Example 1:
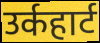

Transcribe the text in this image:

उर्कहार्ट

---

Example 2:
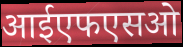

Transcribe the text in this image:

आईएफएसओ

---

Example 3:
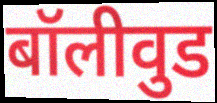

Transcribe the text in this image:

बॉलीवुड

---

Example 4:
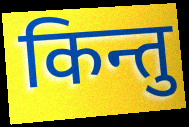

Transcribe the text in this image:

किन्तु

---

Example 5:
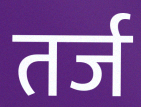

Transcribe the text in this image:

तर्ज